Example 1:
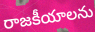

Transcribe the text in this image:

రాజకీయాలను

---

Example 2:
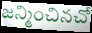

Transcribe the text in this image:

జన్మించినచో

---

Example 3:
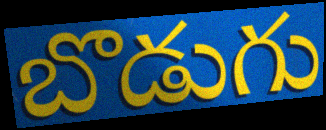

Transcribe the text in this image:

బొడుగు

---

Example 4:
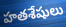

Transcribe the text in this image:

హతశేషులు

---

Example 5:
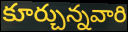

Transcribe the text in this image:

కూర్చున్నవారి